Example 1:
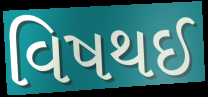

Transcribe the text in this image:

વિષથઈ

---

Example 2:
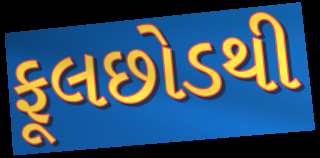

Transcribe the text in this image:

ફૂલછોડથી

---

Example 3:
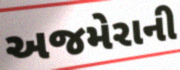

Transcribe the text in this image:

અજમેરાની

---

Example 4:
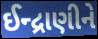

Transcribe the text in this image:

ઈન્દ્રાણીને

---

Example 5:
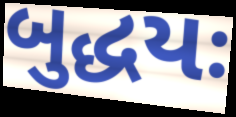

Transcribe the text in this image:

બુદ્ધયઃ